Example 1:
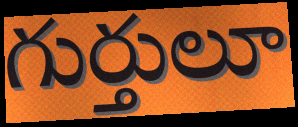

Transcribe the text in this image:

గుర్తులూ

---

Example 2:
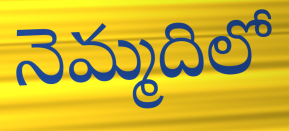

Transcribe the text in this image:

నెమ్మదిలో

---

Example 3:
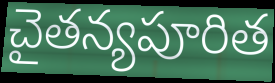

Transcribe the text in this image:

చైతన్యపూరిత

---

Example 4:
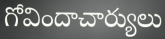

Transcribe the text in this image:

గోవిందాచార్యులు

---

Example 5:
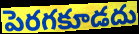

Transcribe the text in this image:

పెరగకూడదు